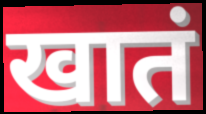
खातं